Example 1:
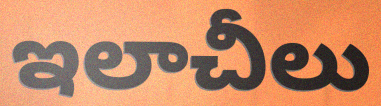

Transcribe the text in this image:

ఇలాచీలు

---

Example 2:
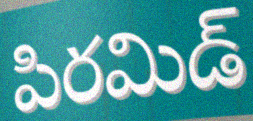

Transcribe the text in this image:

పిరమిడ్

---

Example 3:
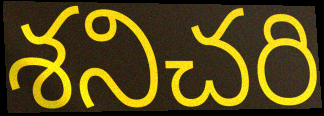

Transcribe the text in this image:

శనిచరి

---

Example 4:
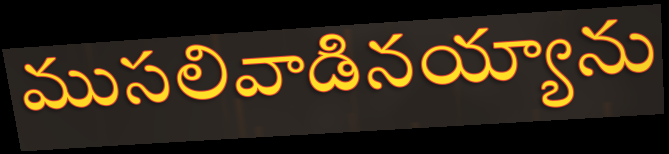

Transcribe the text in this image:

ముసలివాడినయ్యాను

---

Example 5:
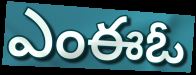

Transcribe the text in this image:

ఎంఈఓ